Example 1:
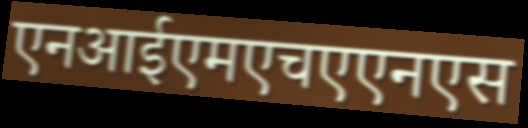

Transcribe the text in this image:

एनआईएमएचएएनएस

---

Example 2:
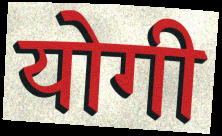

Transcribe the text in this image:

योगी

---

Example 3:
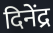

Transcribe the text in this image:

दिनेंद्र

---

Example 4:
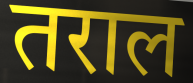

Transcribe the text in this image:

तराल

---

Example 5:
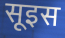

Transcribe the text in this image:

सूइस